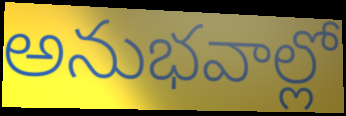
అనుభవాల్లో